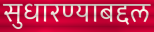
सुधारण्याबद्दल